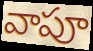
వాపూ